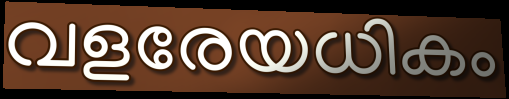
വളരേയധികം